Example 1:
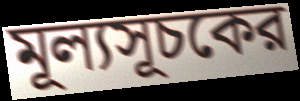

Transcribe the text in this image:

মূল্যসূচকের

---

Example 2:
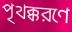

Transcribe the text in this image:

পৃথক্করণে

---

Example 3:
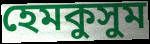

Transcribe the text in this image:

হেমকুসুম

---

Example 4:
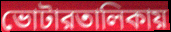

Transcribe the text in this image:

ভোটারতালিকায়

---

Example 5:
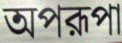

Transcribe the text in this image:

অপরূপা